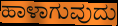
ಹಾಳಾಗುವುದು